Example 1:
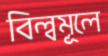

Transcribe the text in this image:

বিল্বমূলে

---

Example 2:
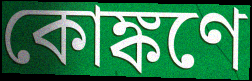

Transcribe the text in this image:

কোঙ্কণে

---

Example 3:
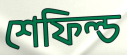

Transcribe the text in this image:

শেফিল্ড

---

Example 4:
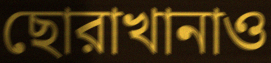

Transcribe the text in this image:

ছোরাখানাও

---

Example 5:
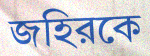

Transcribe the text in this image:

জহিরকে